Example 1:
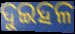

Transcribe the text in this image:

ଦୁଇହଳ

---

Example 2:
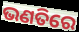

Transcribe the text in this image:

ଭଣତିରେ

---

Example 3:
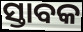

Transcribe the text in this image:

ସ୍ତାବକ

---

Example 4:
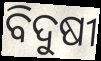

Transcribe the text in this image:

ବିଦୁଷୀ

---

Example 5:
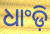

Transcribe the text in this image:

ଧାଂଡ଼ି